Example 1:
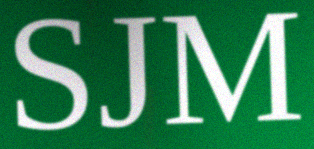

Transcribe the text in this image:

SJM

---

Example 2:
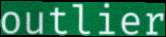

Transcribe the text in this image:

outlier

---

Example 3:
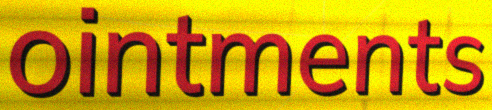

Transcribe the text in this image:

ointments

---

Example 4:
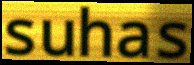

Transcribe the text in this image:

suhas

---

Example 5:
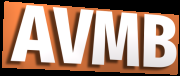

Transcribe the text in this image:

AVMB